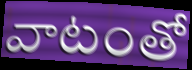
వాటంతో